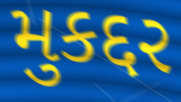
મુકદ્દર